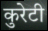
कुरेटी